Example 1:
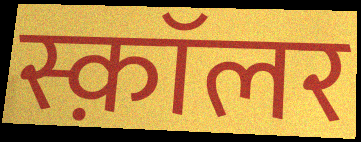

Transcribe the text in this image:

स्क़ॉलर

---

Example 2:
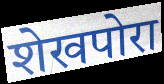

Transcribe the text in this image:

शेखपोरा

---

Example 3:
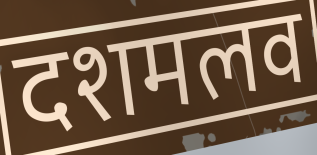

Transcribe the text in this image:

दशमलव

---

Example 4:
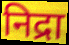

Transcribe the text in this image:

निद्रा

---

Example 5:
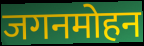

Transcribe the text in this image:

जगनमोहन